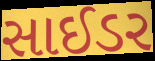
સાઈડર